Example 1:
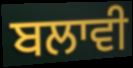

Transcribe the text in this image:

ਬਲਾਵੀ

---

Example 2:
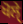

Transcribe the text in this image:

ਖੋਲੑੇ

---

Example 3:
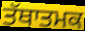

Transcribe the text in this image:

ਤੱਥਾਤਮਕ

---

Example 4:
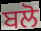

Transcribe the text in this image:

ਬਲੋ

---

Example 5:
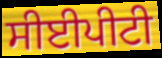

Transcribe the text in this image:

ਸੀਈਪੀਟੀ